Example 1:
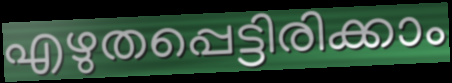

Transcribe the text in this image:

എഴുതപ്പെട്ടിരിക്കാം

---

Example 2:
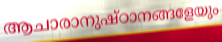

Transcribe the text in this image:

ആചാരാനുഷ്ഠാനങ്ങളേയും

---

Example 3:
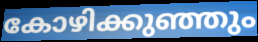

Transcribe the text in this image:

കോഴിക്കുഞ്ഞും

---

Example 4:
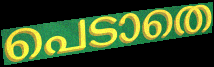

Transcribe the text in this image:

പെടാതെ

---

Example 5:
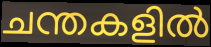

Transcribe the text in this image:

ചന്തകളിൽ